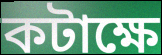
কটাক্ষে